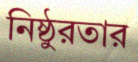
নিষ্ঠুরতার